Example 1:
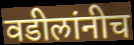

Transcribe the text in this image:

वडीलांनीच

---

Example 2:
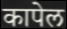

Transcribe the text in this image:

कापेल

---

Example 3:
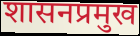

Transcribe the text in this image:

शासनप्रमुख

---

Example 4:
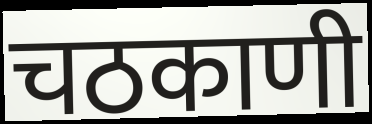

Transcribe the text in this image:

चठकाणी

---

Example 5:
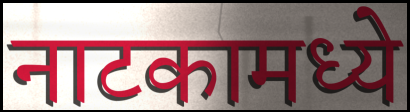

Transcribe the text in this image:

नाटकामध्ये